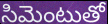
సిమెంటుతో